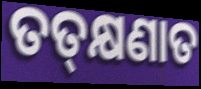
ତତ୍‌କ୍ଷଣାତ